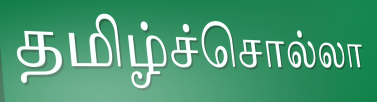
தமிழ்ச்சொல்லா